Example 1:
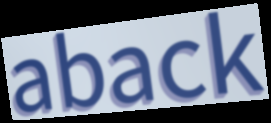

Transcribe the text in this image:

aback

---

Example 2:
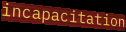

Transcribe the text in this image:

incapacitation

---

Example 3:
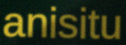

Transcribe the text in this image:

anisitu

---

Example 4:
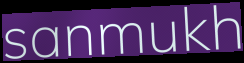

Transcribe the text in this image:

sanmukh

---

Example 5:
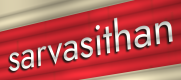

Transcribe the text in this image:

sarvasithan